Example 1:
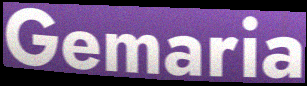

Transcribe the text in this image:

Gemaria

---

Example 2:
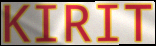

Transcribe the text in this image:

KIRIT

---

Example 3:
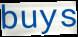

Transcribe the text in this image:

buys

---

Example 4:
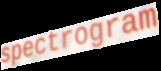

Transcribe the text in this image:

spectrogram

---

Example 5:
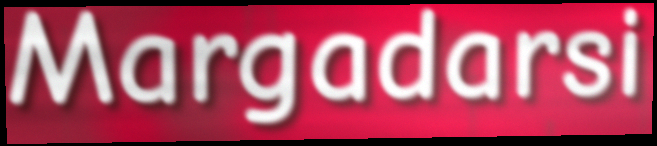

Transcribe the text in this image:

Margadarsi